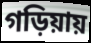
গড়িয়ায়